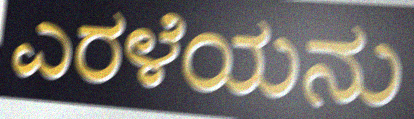
ಎರಳೆಯನು